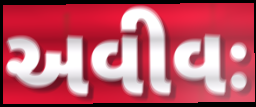
અવીવઃ